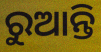
ରୁଆନ୍ତି